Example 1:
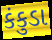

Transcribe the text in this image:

કંકુડા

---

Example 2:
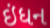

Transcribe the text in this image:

ઇંધન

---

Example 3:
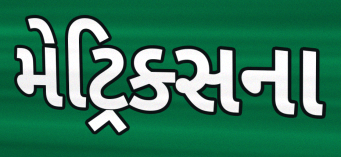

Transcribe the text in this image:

મેટ્રિક્સના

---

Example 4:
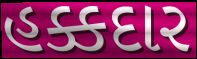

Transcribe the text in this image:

હક્કદાર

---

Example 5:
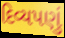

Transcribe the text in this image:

દિવ્યપણું